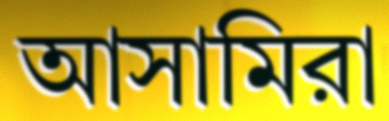
আসামিরা